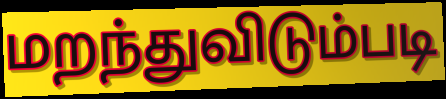
மறந்துவிடும்படி